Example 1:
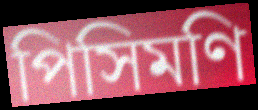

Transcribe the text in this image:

পিসিমণি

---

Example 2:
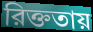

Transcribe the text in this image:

রিক্ততায়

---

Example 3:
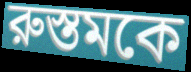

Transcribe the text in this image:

রুস্তমকে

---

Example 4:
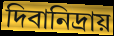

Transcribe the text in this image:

দিবানিদ্রায়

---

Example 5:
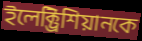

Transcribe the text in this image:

ইলেক্ট্রিশিয়ানকে